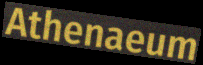
Athenaeum